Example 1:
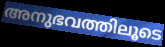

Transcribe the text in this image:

അനുഭവത്തിലൂടെ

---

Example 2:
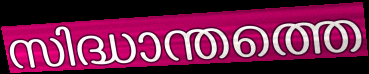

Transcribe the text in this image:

സിദ്ധാന്തത്തെ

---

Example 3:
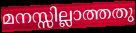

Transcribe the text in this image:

മനസ്സില്ലാത്തതു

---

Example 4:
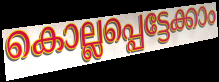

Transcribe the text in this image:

കൊല്ലപ്പെട്ടേക്കാം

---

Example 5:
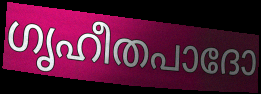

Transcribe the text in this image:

ഗൃഹീതപാദോ